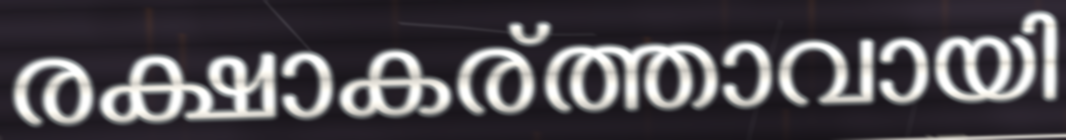
രക്ഷാകര്ത്താവായി